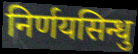
निर्णयसिन्धु